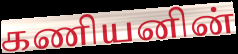
கணியனின்